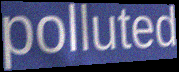
polluted